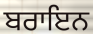
ਬਰਾਇਨ